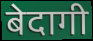
बेदागी